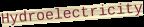
Hydroelectricity